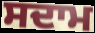
ਸਦਾਮ